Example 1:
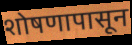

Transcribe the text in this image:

शोषणापासून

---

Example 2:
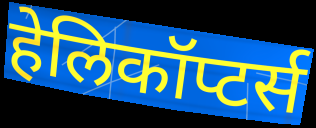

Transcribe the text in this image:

हेलिकॉप्टर्स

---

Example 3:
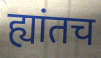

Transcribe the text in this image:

ह्यांतच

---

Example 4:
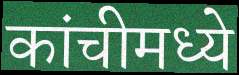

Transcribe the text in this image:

कांचीमध्ये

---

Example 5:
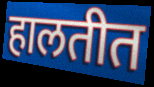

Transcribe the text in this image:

हालतीत